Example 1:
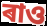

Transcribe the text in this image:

ৰাও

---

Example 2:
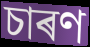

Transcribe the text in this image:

চাৰণ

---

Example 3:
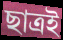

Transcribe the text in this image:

ছাত্ৰই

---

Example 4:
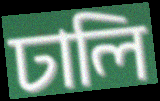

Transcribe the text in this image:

ঢালি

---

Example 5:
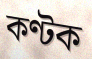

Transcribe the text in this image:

কণ্টক